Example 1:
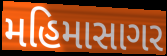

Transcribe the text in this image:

મહિમાસાગર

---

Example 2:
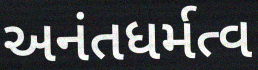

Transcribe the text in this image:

અનંતધર્મત્વ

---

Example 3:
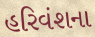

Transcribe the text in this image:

હરિવંશના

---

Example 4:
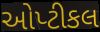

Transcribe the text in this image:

ઓપ્ટીકલ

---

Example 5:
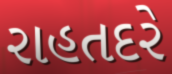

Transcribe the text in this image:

રાહતદરે